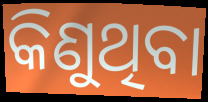
କିଣୁଥିବା